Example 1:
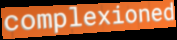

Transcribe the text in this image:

complexioned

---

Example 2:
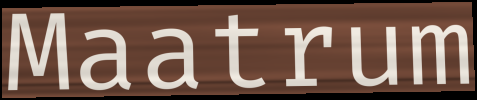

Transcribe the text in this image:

Maatrum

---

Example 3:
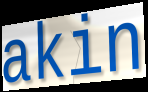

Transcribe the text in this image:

akin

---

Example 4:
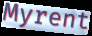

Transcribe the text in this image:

Myrent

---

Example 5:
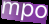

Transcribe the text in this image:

mpo